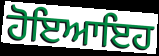
ਹੋਇਆਇਹ